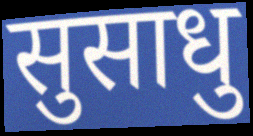
सुसाधु